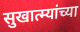
सुखात्म्यांच्या